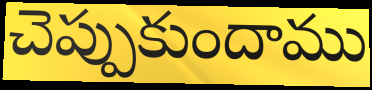
చెప్పుకుందాము